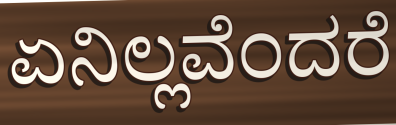
ಏನಿಲ್ಲವೆಂದರೆ